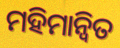
ମହିମାନ୍ଵିତ